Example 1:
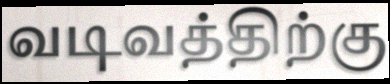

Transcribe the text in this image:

வடிவத்திற்கு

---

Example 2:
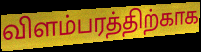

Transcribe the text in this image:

விளம்பரத்திற்காக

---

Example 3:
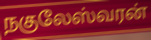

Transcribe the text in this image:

நகுலேஸ்வரன்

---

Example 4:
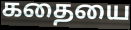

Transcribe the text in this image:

கதையை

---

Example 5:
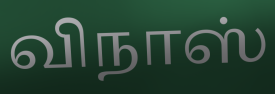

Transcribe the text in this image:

விநாஸ்